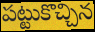
పట్టుకొచ్చిన